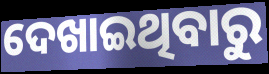
ଦେଖାଇଥିବାରୁ